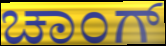
ಚಾಂಗ್